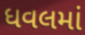
ધવલમાં